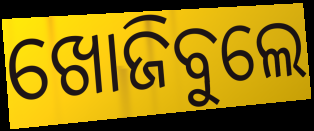
ଖୋଜିବୁଲେ